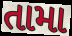
તામા